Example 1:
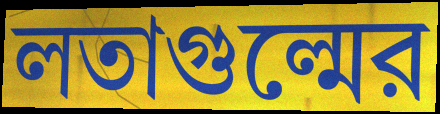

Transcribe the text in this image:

লতাগুল্মের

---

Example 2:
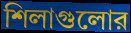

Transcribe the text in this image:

শিলাগুলোর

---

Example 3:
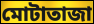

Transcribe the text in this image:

মোটাতাজা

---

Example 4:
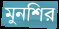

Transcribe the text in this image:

মুনশির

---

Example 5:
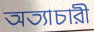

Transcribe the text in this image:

অত্যাচারী